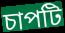
চাপটি